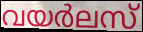
വയർലസ്